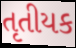
તૃતીયક